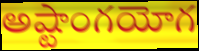
అష్టాంగయోగ